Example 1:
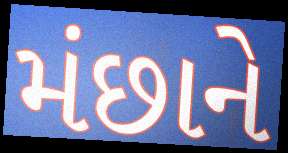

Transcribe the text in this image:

મંછાને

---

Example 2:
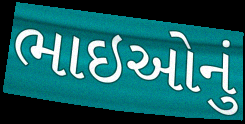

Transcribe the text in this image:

ભાઇઓનું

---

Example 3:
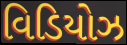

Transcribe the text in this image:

વિડિયોઝ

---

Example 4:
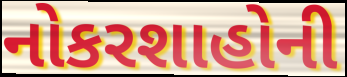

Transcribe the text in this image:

નોકરશાહોની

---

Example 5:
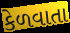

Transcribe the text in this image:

કેળવાતા